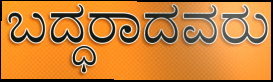
ಬದ್ಧರಾದವರು